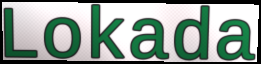
Lokada